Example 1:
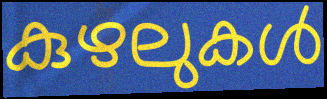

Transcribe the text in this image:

കുഴലുകൾ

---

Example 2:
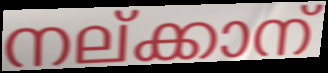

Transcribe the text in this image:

നല്ക്കാന്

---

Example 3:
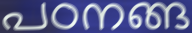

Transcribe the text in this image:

പഠനങ്ങ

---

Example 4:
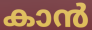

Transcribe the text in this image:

കാൻ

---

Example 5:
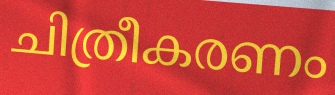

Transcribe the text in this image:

ചിത്രീകരണം